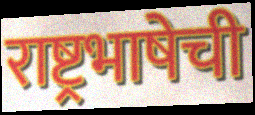
राष्ट्रभाषेची